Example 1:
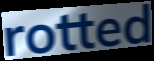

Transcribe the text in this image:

rotted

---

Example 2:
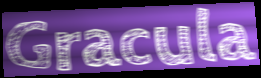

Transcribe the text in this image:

Gracula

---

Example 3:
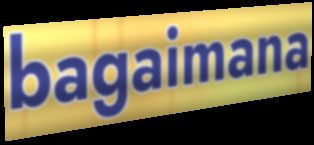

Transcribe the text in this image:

bagaimana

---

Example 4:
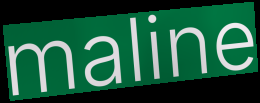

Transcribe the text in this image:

maline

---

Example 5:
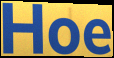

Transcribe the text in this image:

Hoe